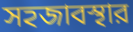
সহজাবস্থার